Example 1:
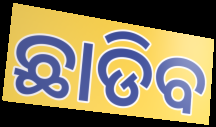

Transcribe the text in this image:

ଛାଡିବ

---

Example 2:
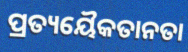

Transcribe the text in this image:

ପ୍ରତ୍ୟୟୈକତାନତା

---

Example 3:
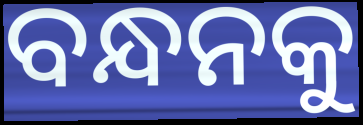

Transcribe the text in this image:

ବନ୍ଧନକୁ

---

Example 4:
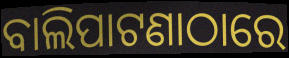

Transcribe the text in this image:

ବାଲିପାଟଣାଠାରେ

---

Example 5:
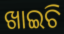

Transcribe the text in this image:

ଖାଇଚି